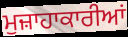
ਮੁਜ਼ਾਹਾਕਾਰੀਆਂ